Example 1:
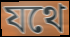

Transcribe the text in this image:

যথে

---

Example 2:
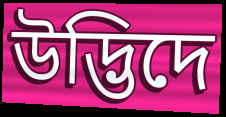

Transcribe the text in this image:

উদ্ভিদে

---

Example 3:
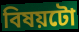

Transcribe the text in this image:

বিষয়টো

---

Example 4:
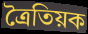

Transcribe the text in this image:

ত্ৰৈতিয়ক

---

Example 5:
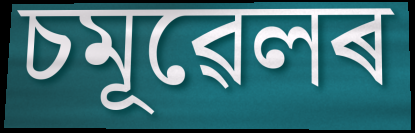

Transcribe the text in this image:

চমূৱেলৰ